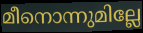
മീനൊന്നുമില്ലേ